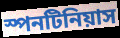
স্পনটিনিয়াস